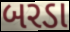
બરડા